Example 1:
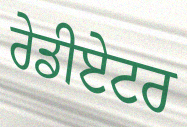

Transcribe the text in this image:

ਰੇਡੀਏਟਰ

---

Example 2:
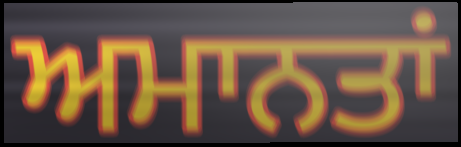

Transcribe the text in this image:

ਅਮਾਨਤਾਂ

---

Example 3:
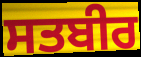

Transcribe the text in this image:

ਸਤਬੀਰ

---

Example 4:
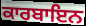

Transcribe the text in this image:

ਕਾਰਬਾਇਨ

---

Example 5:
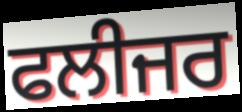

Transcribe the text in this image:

ਫਲੀਜਰ